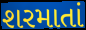
શરમાતાં